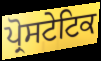
ਪ੍ਰੋਸਟੇਟਿਕ